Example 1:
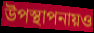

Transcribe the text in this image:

উপস্থাপনায়ও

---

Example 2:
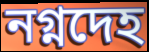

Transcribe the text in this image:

নগ্নদেহ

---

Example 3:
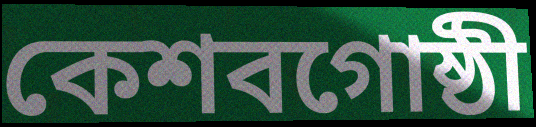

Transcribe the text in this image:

কেশবগোষ্ঠী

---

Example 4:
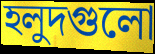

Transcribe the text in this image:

হলুদগুলো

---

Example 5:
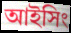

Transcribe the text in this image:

আইসিং